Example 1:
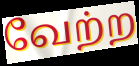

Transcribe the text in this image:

வேற்ற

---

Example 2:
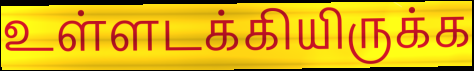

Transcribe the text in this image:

உள்ளடக்கியிருக்க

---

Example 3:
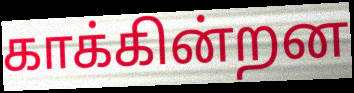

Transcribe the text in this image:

காக்கின்றன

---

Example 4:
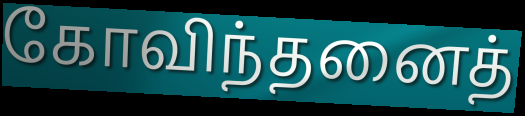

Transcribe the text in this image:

கோவிந்தனைத்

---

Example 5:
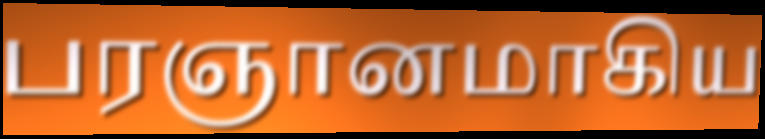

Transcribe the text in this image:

பரஞானமாகிய